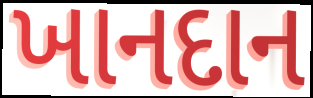
ખાનદાન